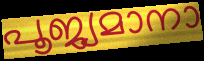
പൂജ്യമാനാ